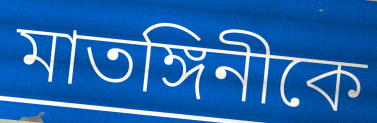
মাতঙ্গিনীকে